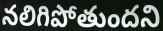
నలిగిపోతుందని